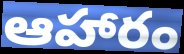
ఆహారం